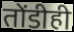
तोंडीही